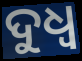
ଦୁଧ୍ଵ